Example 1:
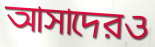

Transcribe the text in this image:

আসাদেরও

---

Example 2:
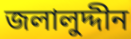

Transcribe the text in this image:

জলালুদ্দীন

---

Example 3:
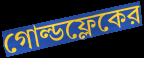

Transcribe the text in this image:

গোল্ডফ্লেকের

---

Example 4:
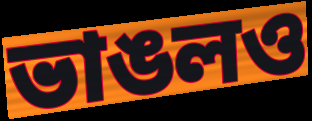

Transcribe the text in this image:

ভাঙলও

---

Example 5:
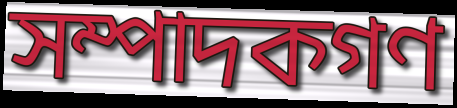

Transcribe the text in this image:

সম্পাদকগণ